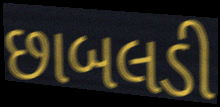
છાબલડી